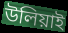
উলিয়াই